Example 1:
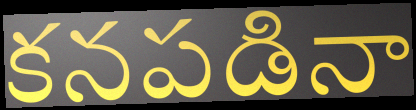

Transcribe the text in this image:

కనపడినా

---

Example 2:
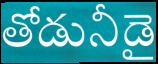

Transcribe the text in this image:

తోడునీడై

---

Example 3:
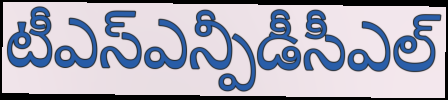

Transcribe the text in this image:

టీఎస్ఎన్పీడీసీఎల్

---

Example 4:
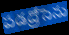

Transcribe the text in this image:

పడద్రోసెను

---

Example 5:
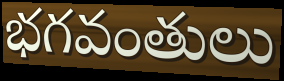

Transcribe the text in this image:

భగవంతులు